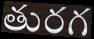
తురగ